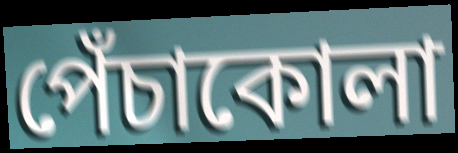
পেঁচাকোলা